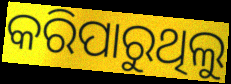
କରିପାରୁଥିଲୁ